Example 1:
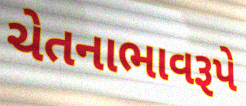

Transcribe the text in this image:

ચેતનાભાવરૂપે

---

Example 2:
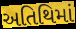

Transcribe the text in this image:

અતિથિમાં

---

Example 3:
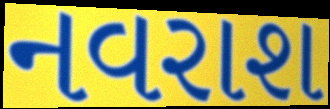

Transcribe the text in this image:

નવરાશ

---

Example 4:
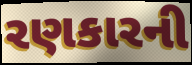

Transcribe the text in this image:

રણકારની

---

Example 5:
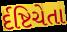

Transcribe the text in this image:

ર્દષ્ટિચેતા